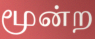
மூன்ற